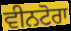
ਵੀਨਟੋਰਾ